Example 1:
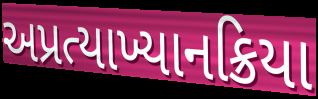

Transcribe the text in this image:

અપ્રત્યાખ્યાનક્રિયા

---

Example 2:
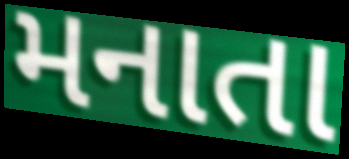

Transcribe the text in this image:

મનાતા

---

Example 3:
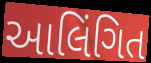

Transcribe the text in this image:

આલિંગિત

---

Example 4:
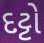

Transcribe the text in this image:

દટ્ટો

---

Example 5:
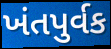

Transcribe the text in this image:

ખંતપુર્વક